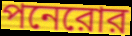
পনেরোর